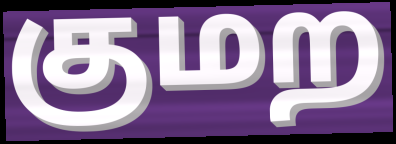
குமற